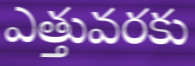
ఎత్తువరకు